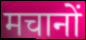
मचानों